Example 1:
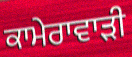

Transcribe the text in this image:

ਕਾਮੇਰਾਵਾੜੀ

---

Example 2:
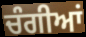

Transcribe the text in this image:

ਚੰਗੀਆਂ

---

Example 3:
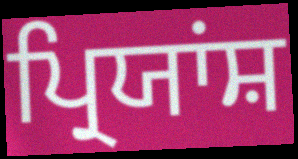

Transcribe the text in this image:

ਪ੍ਰਿਯਾਂਸ਼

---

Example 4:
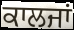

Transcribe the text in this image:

ਕਾਲਜਾਂ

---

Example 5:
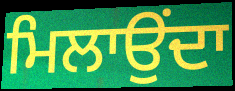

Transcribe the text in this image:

ਮਿਲਾਉਂਦਾ